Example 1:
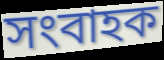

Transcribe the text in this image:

সংবাহক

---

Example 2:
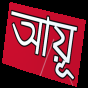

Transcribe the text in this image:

আয়ূ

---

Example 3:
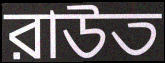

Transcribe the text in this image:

রাউত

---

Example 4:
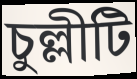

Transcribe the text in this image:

চুল্লীটি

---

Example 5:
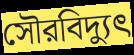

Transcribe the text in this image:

সৌরবিদ্যুৎ